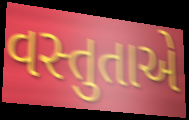
વસ્તુતાએ